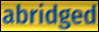
abridged